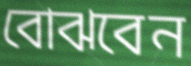
বোঝবেন